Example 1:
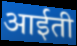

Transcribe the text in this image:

आईती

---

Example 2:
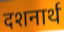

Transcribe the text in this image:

दशनार्थ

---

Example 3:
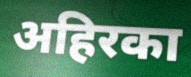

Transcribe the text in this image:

अहिरका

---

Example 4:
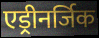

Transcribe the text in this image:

एड्रीनर्जिक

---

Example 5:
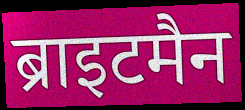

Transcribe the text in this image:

ब्राइटमैन